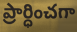
ప్రార్ధించగా